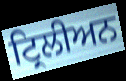
ਟ੍ਰਿਲੀਅਨ